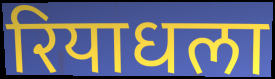
रियाधला